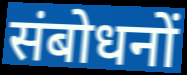
संबोधनों